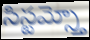
సిస్టమ్స్తో